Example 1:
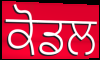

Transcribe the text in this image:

ਕੋਡਲ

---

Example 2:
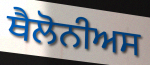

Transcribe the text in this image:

ਥੈਲੋਨੀਅਸ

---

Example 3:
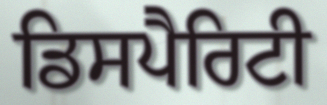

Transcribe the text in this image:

ਡਿਸਪੈਰਿਟੀ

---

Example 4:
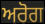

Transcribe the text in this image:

ਅਰੋਗ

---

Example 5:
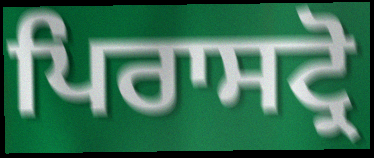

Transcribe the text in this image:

ਪਿਰਾਸਟ੍ਰੋ